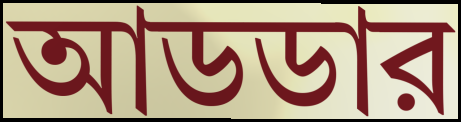
আডডার